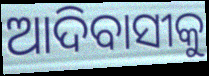
ଆଦିବାସୀକୁ